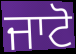
ਜਾਟੋ